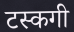
टस्कगी